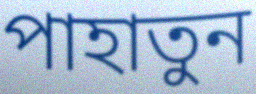
পাহাতুন